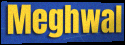
Meghwal